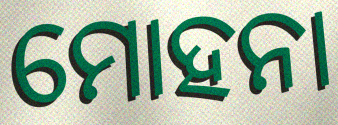
ମୋହନା